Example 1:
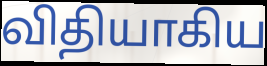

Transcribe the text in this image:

விதியாகிய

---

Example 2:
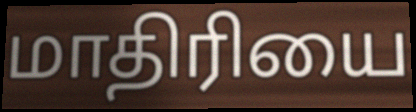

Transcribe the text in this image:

மாதிரியை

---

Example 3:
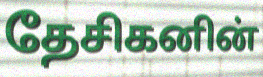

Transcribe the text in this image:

தேசிகனின்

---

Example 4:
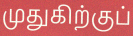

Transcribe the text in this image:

முதுகிற்குப்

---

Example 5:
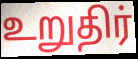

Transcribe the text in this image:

உறுதிர்